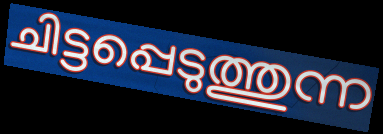
ചിട്ടപ്പെടുത്തുന്ന